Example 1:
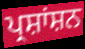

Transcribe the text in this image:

ਪ੍ਰਸ਼ਾਂਸ਼ਨ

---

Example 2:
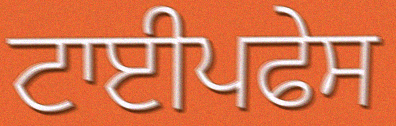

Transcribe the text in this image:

ਟਾਈਪਫੇਸ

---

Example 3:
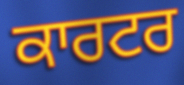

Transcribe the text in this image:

ਕਾਰਟਰ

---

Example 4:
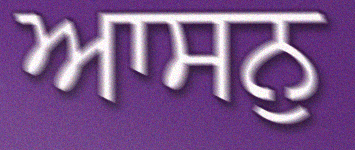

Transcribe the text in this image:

ਆਸਨੁ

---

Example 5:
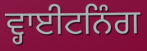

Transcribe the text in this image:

ਵ੍ਹਾਈਟਨਿੰਗ